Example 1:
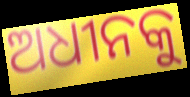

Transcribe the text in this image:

ଅଧୀନକୁ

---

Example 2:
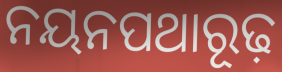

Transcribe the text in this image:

ନୟନପଥାରୂଢ଼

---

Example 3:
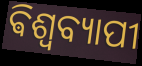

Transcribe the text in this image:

ଵିଶ୍ୱବ୍ୟାପୀ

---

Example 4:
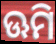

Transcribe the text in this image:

ଊମି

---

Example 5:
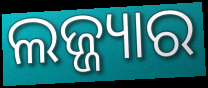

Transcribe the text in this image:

ଲଜ୍ଜ୍ୟାର